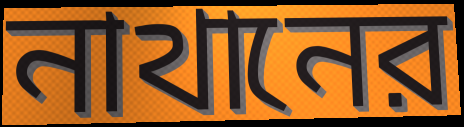
নাথানের